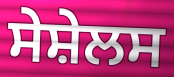
ਸੇਸ਼ੇਲਸ